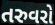
તરુવરો